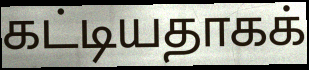
கட்டியதாகக்